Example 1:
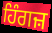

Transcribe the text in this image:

ਹਿੰਗਜ਼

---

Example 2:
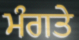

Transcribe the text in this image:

ਮੰਗਤੇ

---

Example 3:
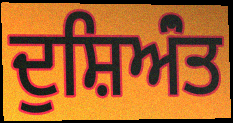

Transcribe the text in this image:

ਦੁਸ਼ਿਅਂੰਤ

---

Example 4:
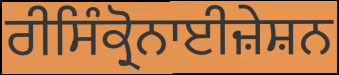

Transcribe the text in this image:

ਰੀਸਿੰਕ੍ਰੋਨਾਈਜ਼ੇਸ਼ਨ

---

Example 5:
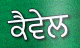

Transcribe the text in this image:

ਕੈਵੇਲ